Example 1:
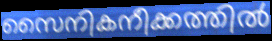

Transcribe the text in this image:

സൈനികനീക്കത്തിൽ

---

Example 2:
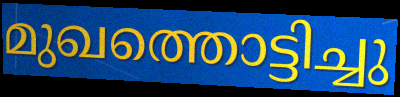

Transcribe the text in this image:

മുഖത്തൊട്ടിച്ചു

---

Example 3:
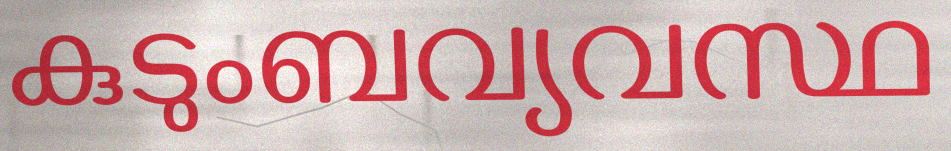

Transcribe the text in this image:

കുടുംബവ്യവസ്ഥ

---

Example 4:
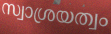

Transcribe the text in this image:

സ്വാശ്രയത്വം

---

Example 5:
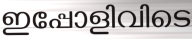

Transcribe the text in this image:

ഇപ്പോളിവിടെ